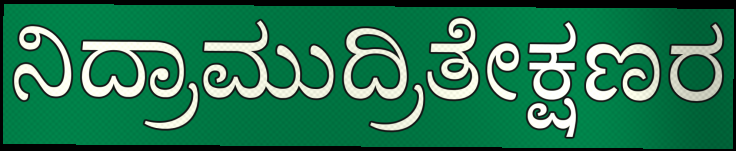
ನಿದ್ರಾಮುದ್ರಿತೇಕ್ಷಣರ